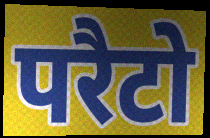
परैटो